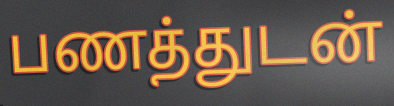
பணத்துடன்